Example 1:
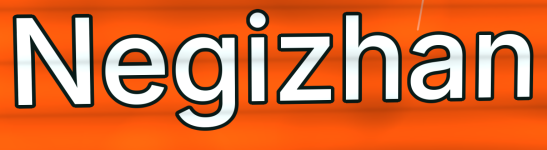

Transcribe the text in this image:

Negizhan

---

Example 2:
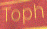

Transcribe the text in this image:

Toph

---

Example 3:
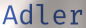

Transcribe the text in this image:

Adler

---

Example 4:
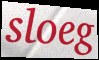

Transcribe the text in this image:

sloeg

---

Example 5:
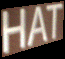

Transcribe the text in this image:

HAT